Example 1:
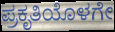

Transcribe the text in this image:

ಪ್ರಕೃತಿಯೊಳಗೇ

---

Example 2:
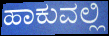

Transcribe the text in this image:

ಹಾಕುವಲ್ಲಿ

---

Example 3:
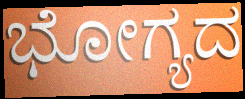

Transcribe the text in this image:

ಭೋಗ್ಯದ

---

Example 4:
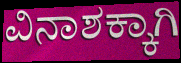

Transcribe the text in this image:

ವಿನಾಶಕ್ಕಾಗಿ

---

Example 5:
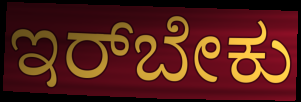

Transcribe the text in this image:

ಇರ್‌ಬೇಕು